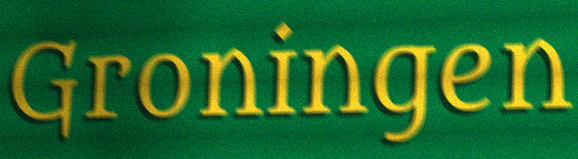
Groningen